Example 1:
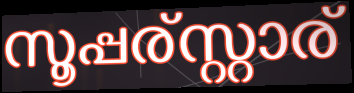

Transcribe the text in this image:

സൂപ്പര്സ്റ്റാര്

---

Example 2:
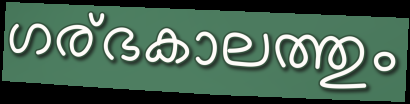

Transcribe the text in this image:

ഗര്ഭകാലത്തും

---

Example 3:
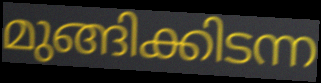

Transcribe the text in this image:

മുങ്ങിക്കിടന്ന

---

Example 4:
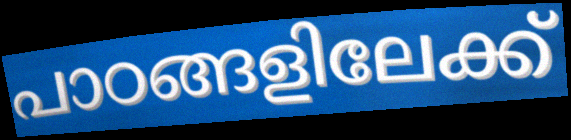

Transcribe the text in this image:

പാഠങ്ങളിലേക്ക്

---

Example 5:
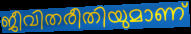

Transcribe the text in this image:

ജീവിതരീതിയുമാണ്